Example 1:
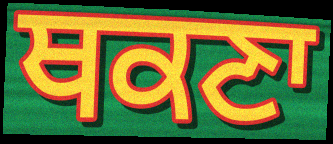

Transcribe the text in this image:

ਥਕਣਾ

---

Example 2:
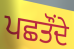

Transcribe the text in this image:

ਪਛਤੌਂਦੇ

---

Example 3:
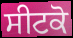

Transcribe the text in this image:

ਸੀਟਕੋ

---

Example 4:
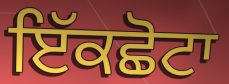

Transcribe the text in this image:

ਇੱਕਛੋਟਾ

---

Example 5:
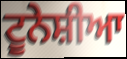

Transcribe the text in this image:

ਟੂਨੇਸ਼ੀਆ